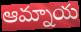
ఆమ్నాయ